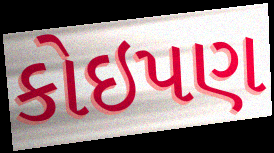
કોઇપણ